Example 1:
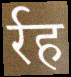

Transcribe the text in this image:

र्रह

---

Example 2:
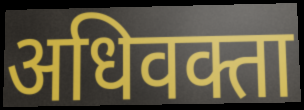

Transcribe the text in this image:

अधिवक्ता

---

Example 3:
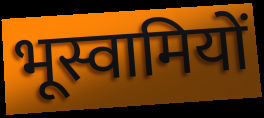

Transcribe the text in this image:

भूस्वामियों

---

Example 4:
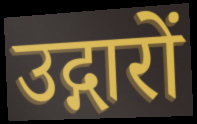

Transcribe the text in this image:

उद्गारों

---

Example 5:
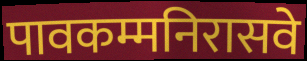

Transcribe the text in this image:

पावकम्मनिरासवे